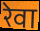
रेवा